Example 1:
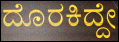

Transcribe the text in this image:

ದೊರಕಿದ್ದೇ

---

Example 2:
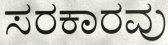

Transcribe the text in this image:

ಸರಕಾರವು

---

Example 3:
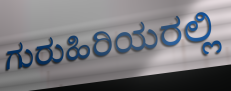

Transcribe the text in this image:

ಗುರುಹಿರಿಯರಲ್ಲಿ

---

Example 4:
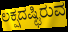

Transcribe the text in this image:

ಲಕ್ಷದಷ್ಟಿರುವ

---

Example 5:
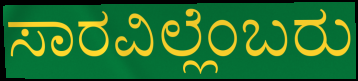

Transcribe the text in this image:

ಸಾರವಿಲ್ಲೆಂಬರು